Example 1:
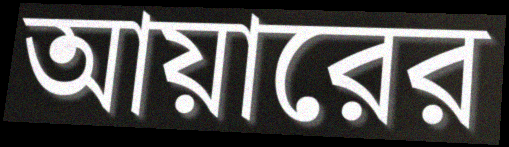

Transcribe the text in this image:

আয়ারের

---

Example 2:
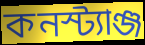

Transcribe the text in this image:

কনস্ট্যাঞ্জ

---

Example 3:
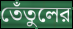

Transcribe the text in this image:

তেঁতুলের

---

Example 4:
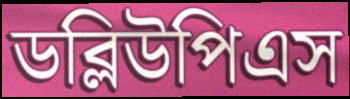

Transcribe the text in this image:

ডব্লিউপিএস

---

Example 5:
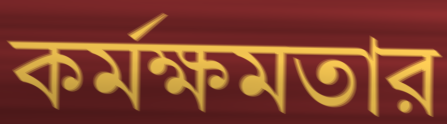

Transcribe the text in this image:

কর্মক্ষমতার